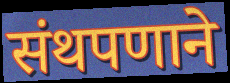
संथपणाने